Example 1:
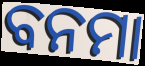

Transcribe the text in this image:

ବନମା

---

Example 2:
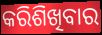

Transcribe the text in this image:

କରିଶିଖିବାର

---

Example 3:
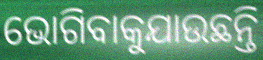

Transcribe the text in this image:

ଭୋଗିବାକୁଯାଉଛନ୍ତି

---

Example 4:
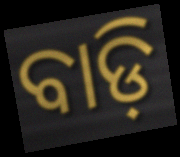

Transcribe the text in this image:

ବାଡ଼ି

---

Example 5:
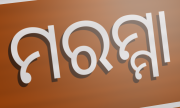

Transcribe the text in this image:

ମରମ୍ମା